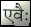
एवैः